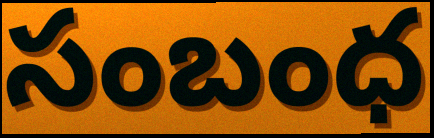
సంబంధ